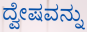
ದ್ವೇಷವನ್ನು